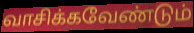
வாசிக்கவேண்டும்